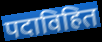
पदाविहित